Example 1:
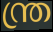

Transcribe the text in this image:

ന്ത്ര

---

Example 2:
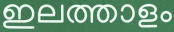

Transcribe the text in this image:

ഇലത്താളം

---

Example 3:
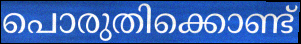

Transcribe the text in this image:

പൊരുതിക്കൊണ്ട്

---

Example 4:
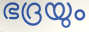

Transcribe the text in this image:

ഭദ്രയും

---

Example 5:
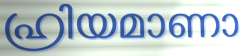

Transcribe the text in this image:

ഹ്രിയമാണാ